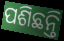
ପଶିଛନ୍ତି